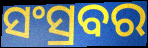
ସଂସ୍ରବର